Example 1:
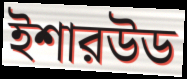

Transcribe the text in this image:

ইশারউড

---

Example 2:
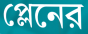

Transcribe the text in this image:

প্লেনের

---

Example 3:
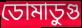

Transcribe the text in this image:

ডোমাডুগু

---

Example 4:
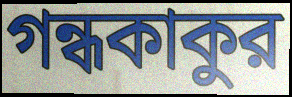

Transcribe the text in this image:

গন্ধকাকুর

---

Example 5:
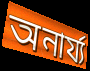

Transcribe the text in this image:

অনার্য্য